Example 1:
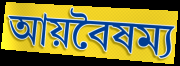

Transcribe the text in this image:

আয়বৈষম্য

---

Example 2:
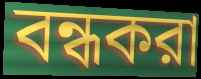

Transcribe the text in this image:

বন্ধকরা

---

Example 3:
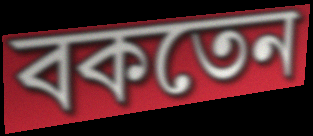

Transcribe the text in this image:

বকতেন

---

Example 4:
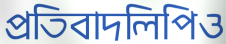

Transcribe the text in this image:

প্রতিবাদলিপিও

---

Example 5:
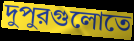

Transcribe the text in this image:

দুপুরগুলোতে